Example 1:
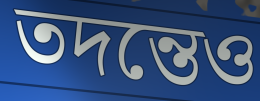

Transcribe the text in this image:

তদন্তেও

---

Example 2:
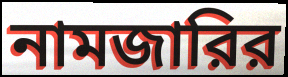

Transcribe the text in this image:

নামজারির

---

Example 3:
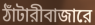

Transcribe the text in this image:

ঠাঁটারীবাজারে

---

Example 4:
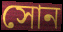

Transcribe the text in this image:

সোন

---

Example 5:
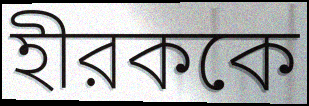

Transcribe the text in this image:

হীরককে